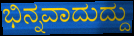
ಭಿನ್ನವಾದುದ್ದು